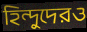
হিন্দুদেরও